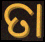
ତା